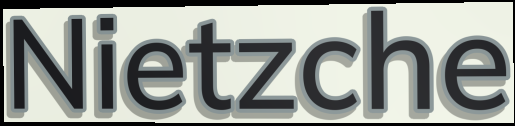
Nietzche